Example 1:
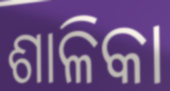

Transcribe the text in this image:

ଶାଳିକା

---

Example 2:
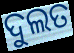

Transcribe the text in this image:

ଦୁଲତ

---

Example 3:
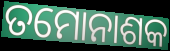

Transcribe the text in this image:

ତମୋନାଶକ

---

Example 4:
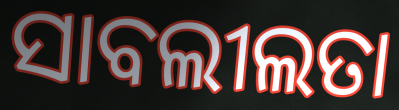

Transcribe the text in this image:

ସାବଲୀଲତା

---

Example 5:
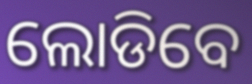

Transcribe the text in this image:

ଲୋଡିବେ